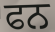
ਫਨ